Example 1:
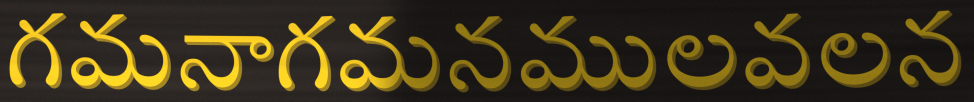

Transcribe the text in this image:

గమనాగమనములవలన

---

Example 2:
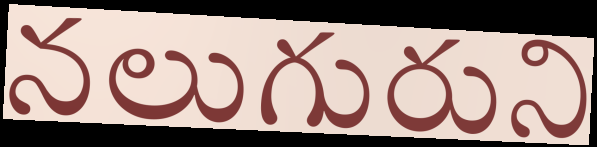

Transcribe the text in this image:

నలుగురుని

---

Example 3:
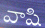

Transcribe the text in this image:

వాషి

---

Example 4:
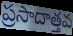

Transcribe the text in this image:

ప్రసాదాత్తవ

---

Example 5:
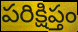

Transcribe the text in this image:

పరిక్షిప్తం